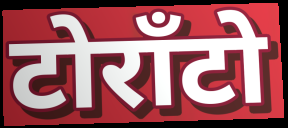
टोरॉंटो